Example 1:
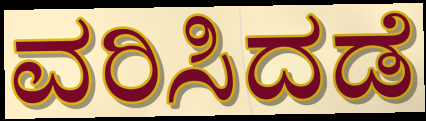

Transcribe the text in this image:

ವರಿಸಿದಡೆ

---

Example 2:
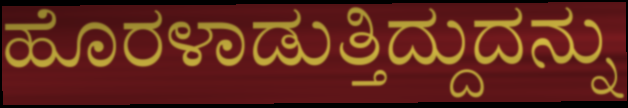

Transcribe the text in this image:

ಹೊರಳಾಡುತ್ತಿದ್ದುದನ್ನು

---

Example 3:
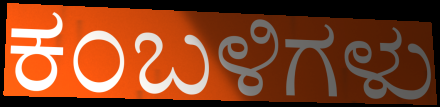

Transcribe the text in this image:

ಕಂಬಳಿಗಳು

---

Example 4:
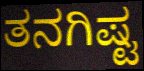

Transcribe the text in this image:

ತನಗಿಷ್ಟ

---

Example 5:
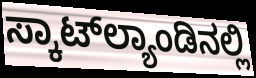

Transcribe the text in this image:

ಸ್ಕಾಟ್‌ಲ್ಯಾಂಡಿನಲ್ಲಿ